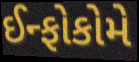
ઈન્ફોકોમે